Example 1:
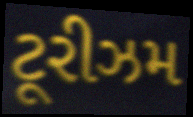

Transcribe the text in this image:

ટૂરીઝમ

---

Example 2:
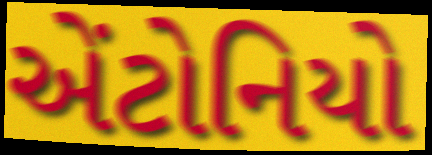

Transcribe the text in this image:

એંટોનિયો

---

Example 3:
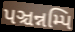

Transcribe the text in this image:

પઞ્ચન્નમ્પિ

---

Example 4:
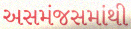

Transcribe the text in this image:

અસમંજસમાંથી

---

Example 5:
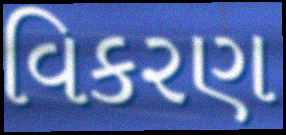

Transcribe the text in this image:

વિકરણ